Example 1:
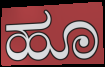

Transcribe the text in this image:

ಹೂ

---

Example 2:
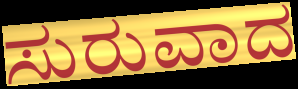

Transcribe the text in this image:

ಸುರುವಾದ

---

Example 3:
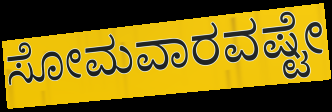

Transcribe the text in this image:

ಸೋಮವಾರವಷ್ಟೇ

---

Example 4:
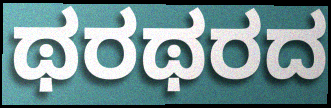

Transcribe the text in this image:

ಥರಥರದ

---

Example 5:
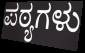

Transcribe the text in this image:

ಪಠ್ಯಗಳು